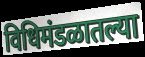
विधिमंडळातल्या